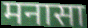
मनासा